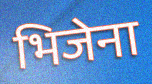
भिजेना